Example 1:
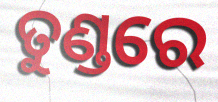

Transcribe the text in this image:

ତୁଣ୍ଡରେ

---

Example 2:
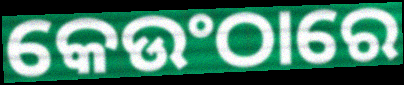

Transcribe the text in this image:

କେଉଂଠାରେ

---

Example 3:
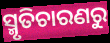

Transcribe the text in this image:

ସ୍ମୃତିଚାରଣରୁ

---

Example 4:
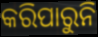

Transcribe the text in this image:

କରିପାରୁନି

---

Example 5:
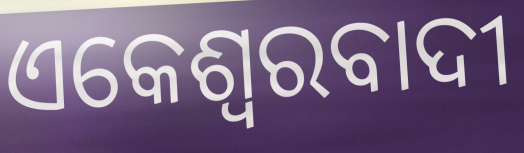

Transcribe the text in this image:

ଏକେଶ୍ଵରବାଦୀ